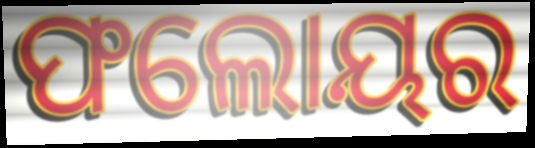
ଫଲୋୟର